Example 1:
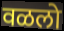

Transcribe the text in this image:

वळलो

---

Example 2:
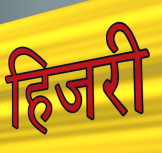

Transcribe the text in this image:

हिजरी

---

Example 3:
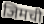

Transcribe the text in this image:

जिमची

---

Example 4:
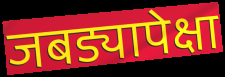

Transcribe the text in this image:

जबड्यापेक्षा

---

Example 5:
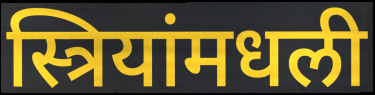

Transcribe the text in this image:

स्त्रियांमधली